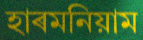
হাৰমনিয়াম